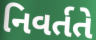
નિવર્તતે